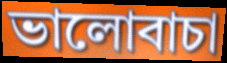
ভালোবাচা